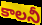
కాలనీ